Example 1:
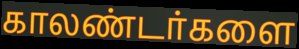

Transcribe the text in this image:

காலண்டர்களை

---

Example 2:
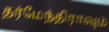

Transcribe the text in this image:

தர்மேந்திராவும்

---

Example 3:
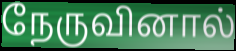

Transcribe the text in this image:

நேருவினால்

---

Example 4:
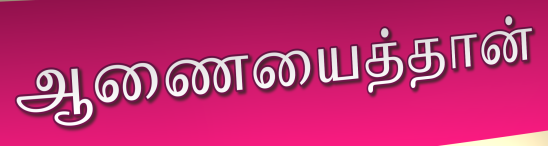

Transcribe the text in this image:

ஆணையைத்தான்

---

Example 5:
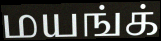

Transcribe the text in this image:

மயங்க்